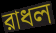
রাধল